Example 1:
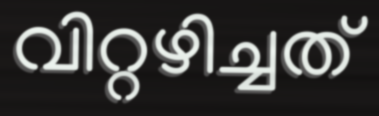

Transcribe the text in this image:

വിറ്റഴിച്ചത്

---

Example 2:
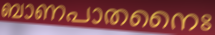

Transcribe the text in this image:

ബാണപാതനൈഃ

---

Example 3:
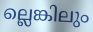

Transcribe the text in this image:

ല്ലെങ്കിലും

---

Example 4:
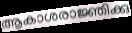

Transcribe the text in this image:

ആകാശരാജ്ഞിക്കു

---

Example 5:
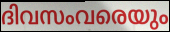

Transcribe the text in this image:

ദിവസംവരെയും